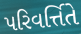
પરિવર્ત્તિતે